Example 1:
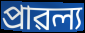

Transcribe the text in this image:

প্ৰাৱল্য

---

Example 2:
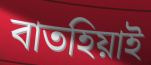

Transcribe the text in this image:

বাতহিয়াই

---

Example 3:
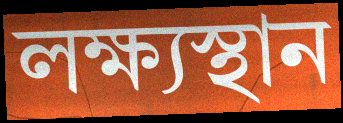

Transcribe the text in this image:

লক্ষ্যস্থান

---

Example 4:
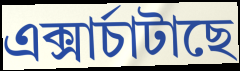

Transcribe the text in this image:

এক্সাৰ্চাটাছে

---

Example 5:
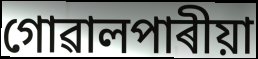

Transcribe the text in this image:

গোৱালপাৰীয়া